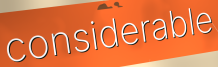
considerable